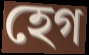
হেগ